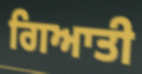
ਗਿਆਤੀ